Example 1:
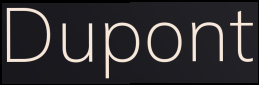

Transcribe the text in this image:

Dupont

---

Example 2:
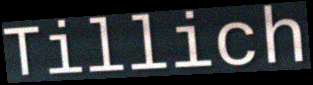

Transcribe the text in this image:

Tillich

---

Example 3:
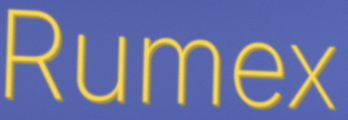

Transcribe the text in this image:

Rumex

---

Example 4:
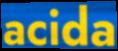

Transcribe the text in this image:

acida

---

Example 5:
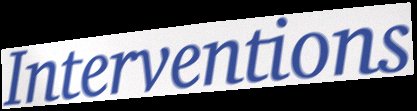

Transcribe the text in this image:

Interventions